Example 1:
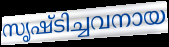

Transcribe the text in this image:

സൃഷ്ടിച്ചവനായ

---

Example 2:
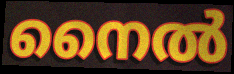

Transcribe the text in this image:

നൈൽ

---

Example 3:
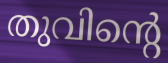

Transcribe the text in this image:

തുവിന്റെ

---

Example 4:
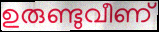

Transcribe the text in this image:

ഉരുണ്ടുവീണ്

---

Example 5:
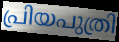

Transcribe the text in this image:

പ്രിയപുത്രി